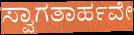
ಸ್ವಾಗತಾರ್ಹವೇ